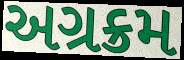
અગ્રક્રમ